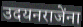
उदयनराजेंना